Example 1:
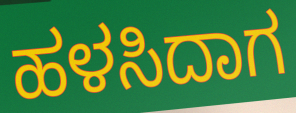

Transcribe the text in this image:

ಹಳಸಿದಾಗ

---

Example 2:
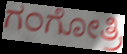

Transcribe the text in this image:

ಗಂಗೋತ್ರಿ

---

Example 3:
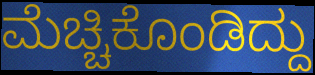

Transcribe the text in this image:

ಮೆಚ್ಚಿಕೊಂಡಿದ್ದು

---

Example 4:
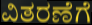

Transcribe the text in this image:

ವಿತರಣೆಗೆ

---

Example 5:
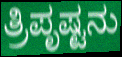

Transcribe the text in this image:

ತ್ರಿಪೃಷ್ಟನು